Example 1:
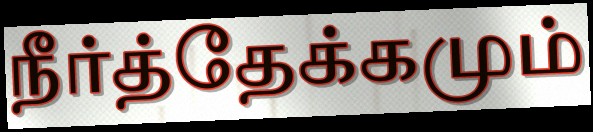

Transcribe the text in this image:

நீர்த்தேக்கமும்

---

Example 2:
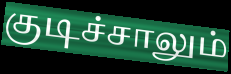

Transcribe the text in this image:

குடிச்சாலும்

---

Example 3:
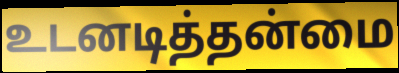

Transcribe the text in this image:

உடனடித்தன்மை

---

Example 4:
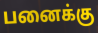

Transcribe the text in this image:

பனைக்கு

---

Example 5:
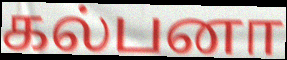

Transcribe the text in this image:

கல்பனா